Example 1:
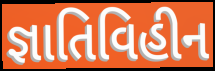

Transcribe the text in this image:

જ્ઞાતિવિહીન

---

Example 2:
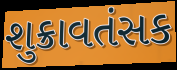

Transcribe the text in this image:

શુક્રાવતંસક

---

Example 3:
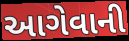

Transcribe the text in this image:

આગેવાની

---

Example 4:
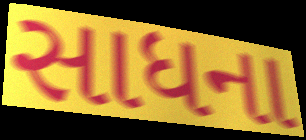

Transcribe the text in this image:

સાધના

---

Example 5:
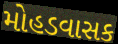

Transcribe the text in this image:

મોહડવાસક